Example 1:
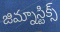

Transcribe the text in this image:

జిమ్నాస్టిక్స్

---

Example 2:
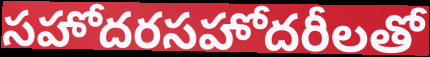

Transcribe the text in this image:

సహోదరసహోదరీలతో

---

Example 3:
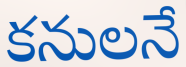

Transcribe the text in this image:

కనులనే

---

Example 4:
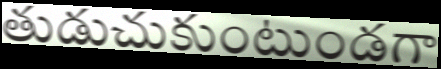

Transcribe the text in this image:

తుడుచుకుంటుండగా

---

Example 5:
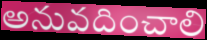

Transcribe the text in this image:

అనువదించాలి